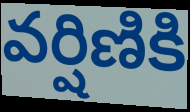
వర్షిణికి